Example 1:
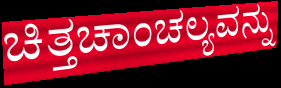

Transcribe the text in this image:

ಚಿತ್ತಚಾಂಚಲ್ಯವನ್ನು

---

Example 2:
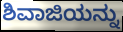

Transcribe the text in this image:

ಶಿವಾಜಿಯನ್ನು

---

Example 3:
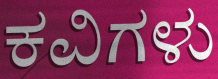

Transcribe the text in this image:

ಕವಿಗಳು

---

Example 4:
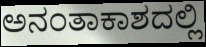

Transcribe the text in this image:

ಅನಂತಾಕಾಶದಲ್ಲಿ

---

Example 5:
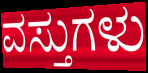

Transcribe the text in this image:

ವಸ್ತುಗಳು